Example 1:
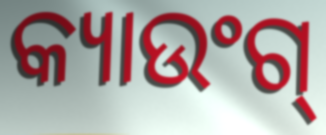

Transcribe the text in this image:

କ୍ୟାଉଂଗ୍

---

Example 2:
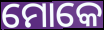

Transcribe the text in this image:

ମୋକେ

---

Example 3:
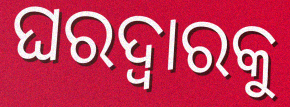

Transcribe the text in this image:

ଘରଦ୍ୱାରକୁ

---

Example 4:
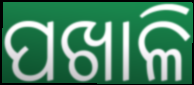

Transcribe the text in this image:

ପଖାଳି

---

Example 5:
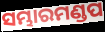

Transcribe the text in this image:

ସମ୍ଭାରମଣ୍ଡପ